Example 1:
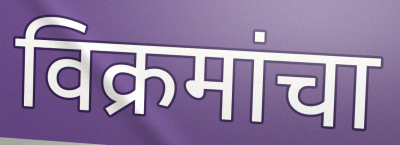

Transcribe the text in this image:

विक्रमांचा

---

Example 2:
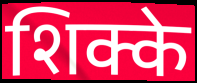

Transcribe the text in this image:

शिक्के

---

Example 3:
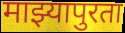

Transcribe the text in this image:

माझ्यापुरता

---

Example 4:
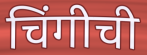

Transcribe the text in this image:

चिंगीची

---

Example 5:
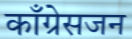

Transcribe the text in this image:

काँग्रेसजन